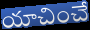
యాచించే